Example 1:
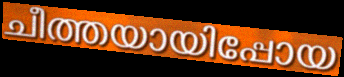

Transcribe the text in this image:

ചീത്തയായിപ്പോയ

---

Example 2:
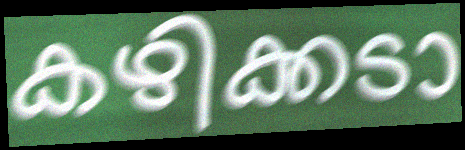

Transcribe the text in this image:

കഴിക്കടാ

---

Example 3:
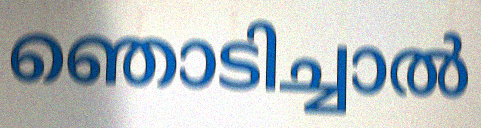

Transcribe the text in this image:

ഞൊടിച്ചാൽ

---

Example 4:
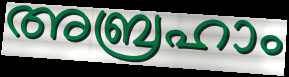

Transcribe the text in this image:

അബ്രഹാം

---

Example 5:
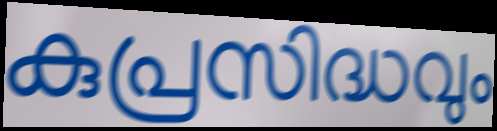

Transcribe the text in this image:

കുപ്രസിദ്ധവും